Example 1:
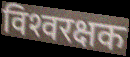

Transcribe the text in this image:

विश्वरक्षक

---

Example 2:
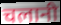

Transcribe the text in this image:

चलानी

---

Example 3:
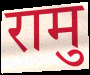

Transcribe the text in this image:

रामु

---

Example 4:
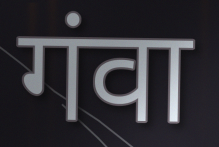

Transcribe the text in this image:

गंवा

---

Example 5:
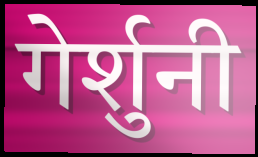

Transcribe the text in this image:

गेर्शुनी